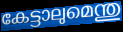
കേട്ടാലുമെന്തു